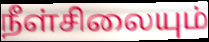
நீள்சிலையும்